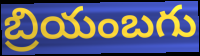
బ్రియంబగు